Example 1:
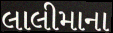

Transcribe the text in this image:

લાલીમાના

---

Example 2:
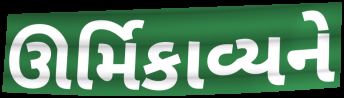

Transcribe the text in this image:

ઊર્મિકાવ્યને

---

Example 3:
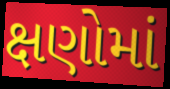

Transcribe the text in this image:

ક્ષણોમાં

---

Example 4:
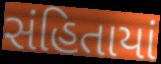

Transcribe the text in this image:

સંહિતાયાં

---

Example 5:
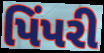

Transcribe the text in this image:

પિંપરી